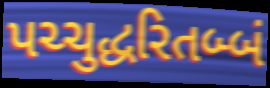
પચ્ચુદ્ધરિતબ્બં